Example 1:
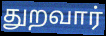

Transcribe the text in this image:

துறவார்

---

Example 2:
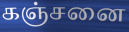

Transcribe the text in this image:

கஞ்சனை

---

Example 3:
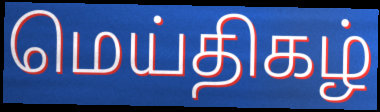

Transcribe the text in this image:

மெய்திகழ்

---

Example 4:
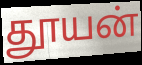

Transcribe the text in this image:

தூயன்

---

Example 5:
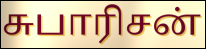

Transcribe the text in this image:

சுபாரிசன்